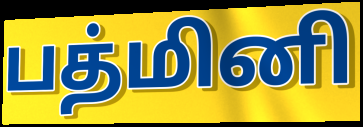
பத்மினி